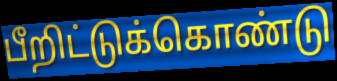
பீறிட்டுக்கொண்டு